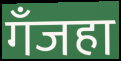
गँजहा